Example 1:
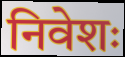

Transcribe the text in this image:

निवेशः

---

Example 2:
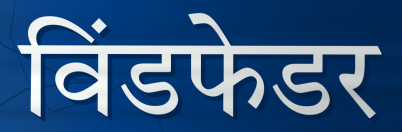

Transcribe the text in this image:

विंडफेडर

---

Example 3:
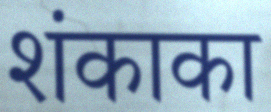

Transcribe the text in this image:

शंकाका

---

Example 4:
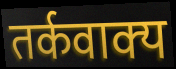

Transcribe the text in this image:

तर्कवाक्य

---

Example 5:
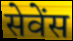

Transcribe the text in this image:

सेवेंस